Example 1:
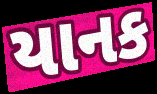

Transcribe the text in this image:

યાનક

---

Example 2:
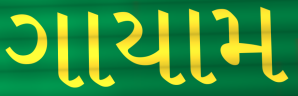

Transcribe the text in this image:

ગાયામ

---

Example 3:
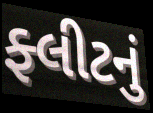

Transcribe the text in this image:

ફ્લીટનું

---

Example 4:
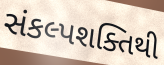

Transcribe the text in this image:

સંકલ્પશક્તિથી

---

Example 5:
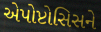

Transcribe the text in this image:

એપોપ્ટોસિસને